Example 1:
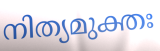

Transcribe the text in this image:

നിത്യമുക്തഃ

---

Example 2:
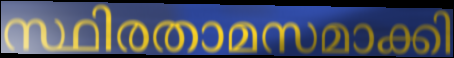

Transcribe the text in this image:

സ്ഥിരതാമസമാക്കി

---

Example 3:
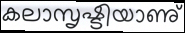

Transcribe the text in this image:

കലാസൃഷ്ടിയാണു്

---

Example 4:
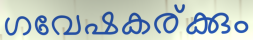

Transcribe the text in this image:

ഗവേഷകര്ക്കും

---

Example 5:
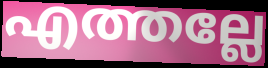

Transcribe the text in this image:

എത്തല്ലേ